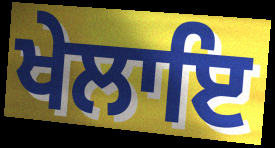
ਖੇਲਾਇ